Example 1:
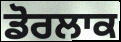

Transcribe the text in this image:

ਡੋਰਲਾਕ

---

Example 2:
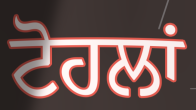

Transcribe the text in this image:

ਟੋਹਲਾਂ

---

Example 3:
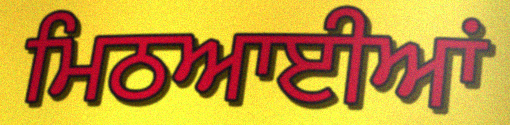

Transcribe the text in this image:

ਮਿਠਆਈਆਂ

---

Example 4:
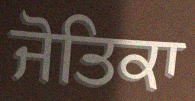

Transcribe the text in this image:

ਜੋਤਿਕਾ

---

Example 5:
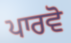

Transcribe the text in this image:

ਪਾਰਵੋ